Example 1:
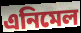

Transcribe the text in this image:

এনিমেল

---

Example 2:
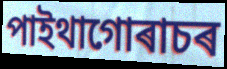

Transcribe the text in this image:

পাইথাগোৰাচৰ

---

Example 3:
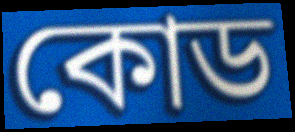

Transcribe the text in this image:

কোড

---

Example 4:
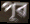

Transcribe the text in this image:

পূৱ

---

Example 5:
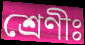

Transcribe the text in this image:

শ্ৰেণীঃ